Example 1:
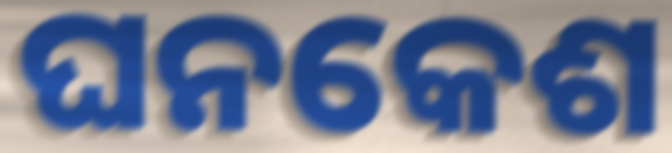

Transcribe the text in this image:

ଘନକେଶ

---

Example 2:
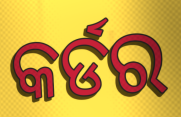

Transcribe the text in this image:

କର୍ଡର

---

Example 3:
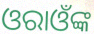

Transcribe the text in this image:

ଓରାଓଁଙ୍କ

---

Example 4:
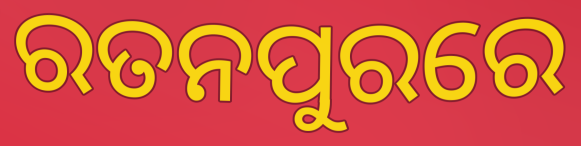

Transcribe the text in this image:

ରତନପୁରରେ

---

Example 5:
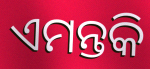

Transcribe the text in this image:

ଏମନ୍ତକି